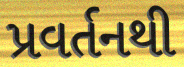
પ્રવર્તનથી